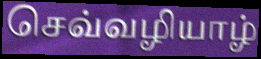
செவ்வழியாழ்